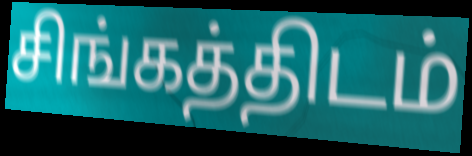
சிங்கத்திடம்